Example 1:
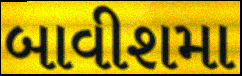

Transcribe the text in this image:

બાવીશમા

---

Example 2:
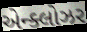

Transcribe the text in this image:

એન્ક્લોઝર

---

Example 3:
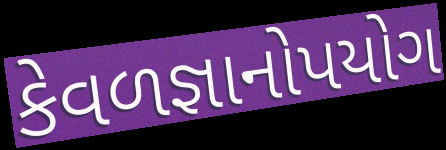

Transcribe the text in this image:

કેવળજ્ઞાનોપયોગ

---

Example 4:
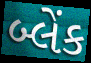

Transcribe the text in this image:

બ્લેંક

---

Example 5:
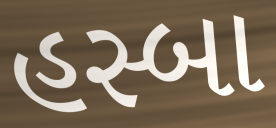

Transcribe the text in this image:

હસ્બા